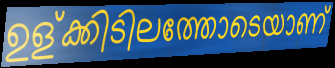
ഉള്ക്കിടിലത്തോടെയാണ്